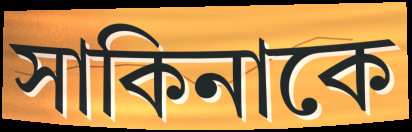
সাকিনাকে